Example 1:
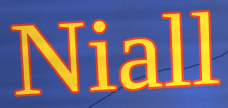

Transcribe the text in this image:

Niall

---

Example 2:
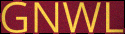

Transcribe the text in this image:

GNWL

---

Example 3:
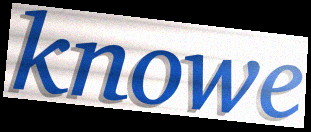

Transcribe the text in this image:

knowe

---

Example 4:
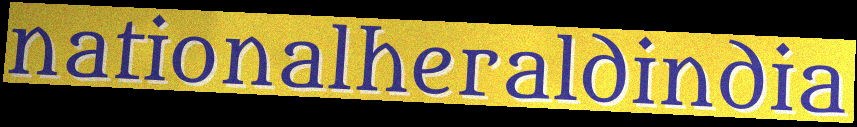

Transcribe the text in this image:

nationalheraldindia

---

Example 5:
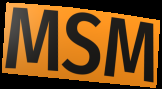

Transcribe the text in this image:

MSM